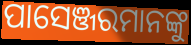
ପାସେଞ୍ଜରମାନଙ୍କୁ